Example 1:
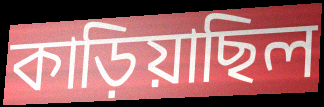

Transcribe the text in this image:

কাড়িয়াছিল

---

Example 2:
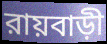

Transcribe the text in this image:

রায়বাড়ী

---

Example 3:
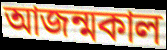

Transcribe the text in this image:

আজন্মকাল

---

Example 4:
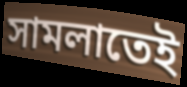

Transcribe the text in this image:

সামলাতেই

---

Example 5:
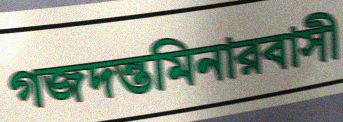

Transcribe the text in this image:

গজদন্তমিনারবাসী